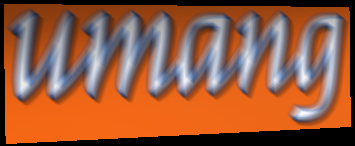
umang